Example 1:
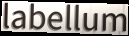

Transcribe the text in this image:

labellum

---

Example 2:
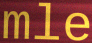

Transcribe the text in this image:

mle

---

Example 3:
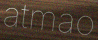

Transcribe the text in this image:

atmao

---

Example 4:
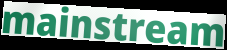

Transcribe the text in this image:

mainstream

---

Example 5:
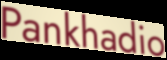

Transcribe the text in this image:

Pankhadio